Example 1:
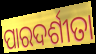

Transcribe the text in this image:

ପାରଦର୍ଶୀତା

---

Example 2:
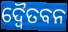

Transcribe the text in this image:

ଦ୍ୱୈତବନ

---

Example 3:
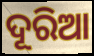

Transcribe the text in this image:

ଦୂରିଆ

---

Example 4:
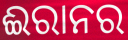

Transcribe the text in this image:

ଈରାନର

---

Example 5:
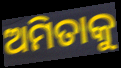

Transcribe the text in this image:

ଅମିତାକୁ